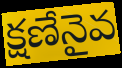
క్షణేనైవ